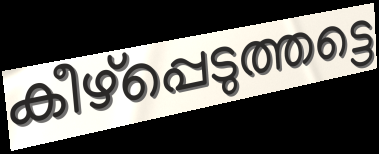
കീഴ്പ്പെടുത്തട്ടെ